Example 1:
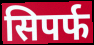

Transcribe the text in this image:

सिपर्फ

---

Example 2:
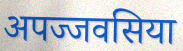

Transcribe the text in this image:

अपज्जवसिया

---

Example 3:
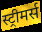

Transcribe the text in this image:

स्ट्रीमर्स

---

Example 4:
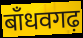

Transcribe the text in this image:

बाँधवगढ़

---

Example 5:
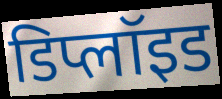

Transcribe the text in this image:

डिप्लॉइड